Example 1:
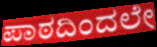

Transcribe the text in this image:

ಪಾಠದಿಂದಲೇ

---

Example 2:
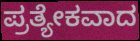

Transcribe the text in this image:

ಪ್ರತ್ಯೇಕವಾದ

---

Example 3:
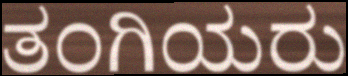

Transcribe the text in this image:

ತಂಗಿಯರು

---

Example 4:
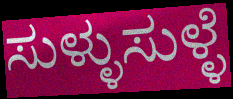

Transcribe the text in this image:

ಸುಳ್ಳುಸುಳ್ಳೆ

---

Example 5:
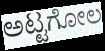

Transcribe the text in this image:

ಅಟ್ಟಗೋಲ